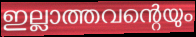
ഇല്ലാത്തവന്റെയും